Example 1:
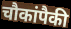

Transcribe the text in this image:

चौकांपैकी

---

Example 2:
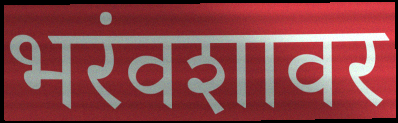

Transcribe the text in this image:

भरंवशावर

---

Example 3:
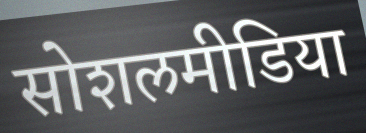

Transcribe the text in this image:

सोशलमीडिया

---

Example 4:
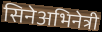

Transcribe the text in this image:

सिनेअभिनेत्री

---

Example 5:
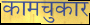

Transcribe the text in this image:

कामचुकार